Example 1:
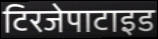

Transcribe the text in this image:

टिरजेपाटाइड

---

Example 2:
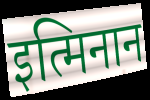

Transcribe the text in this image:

इत्मिनान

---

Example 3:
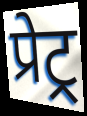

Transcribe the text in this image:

प्रेट्र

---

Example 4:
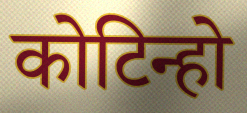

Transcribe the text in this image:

कोटिन्हो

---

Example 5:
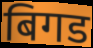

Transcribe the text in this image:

बिगड